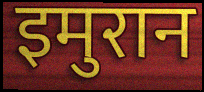
इमुरान